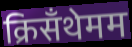
क्रिसँथेमम